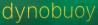
dynobuoy